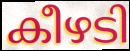
കീഴടി